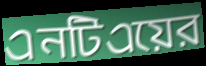
এনটিএয়ের